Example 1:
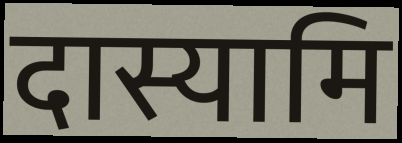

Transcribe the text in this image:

दास्यामि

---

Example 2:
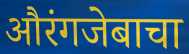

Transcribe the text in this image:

औरंगजेबाचा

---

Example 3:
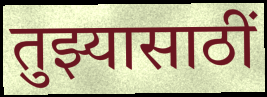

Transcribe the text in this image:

तुझ्यासाठीं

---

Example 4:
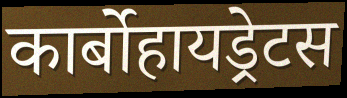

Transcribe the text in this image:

कार्बोहायड्रेटस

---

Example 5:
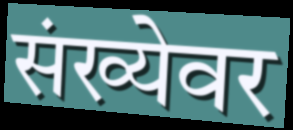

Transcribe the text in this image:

संख्येवर